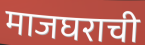
माजघराची